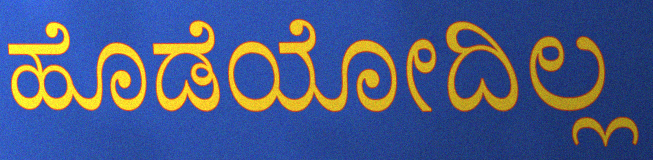
ಹೊಡೆಯೋದಿಲ್ಲ